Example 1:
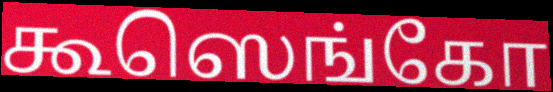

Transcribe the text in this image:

கூஸெங்கோ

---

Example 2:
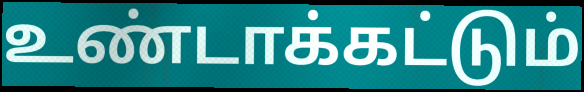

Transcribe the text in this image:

உண்டாக்கட்டும்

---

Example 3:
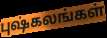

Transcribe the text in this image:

புஷ்கலங்கள்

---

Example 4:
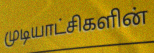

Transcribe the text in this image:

முடியாட்சிகளின்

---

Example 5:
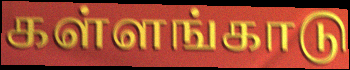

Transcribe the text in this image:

கள்ளங்காடு